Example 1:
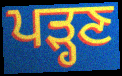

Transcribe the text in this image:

ਪੜ੍ਹਣ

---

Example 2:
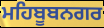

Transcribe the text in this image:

ਮਹਿਬੂਬਨਗਰ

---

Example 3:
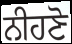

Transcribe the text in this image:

ਨੀਹਣੋ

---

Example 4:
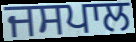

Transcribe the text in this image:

ਜਸਪਾਲ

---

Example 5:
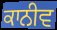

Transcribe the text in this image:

ਕਾਨੀਵ